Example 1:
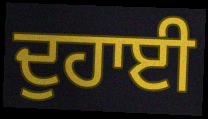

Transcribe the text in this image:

ਦੁਹਾਈ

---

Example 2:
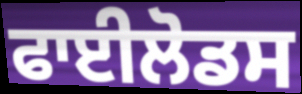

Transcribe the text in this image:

ਫਾਈਲੋਡਸ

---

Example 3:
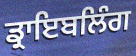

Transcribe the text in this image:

ਡ੍ਰਾਇਬਲਿੰਗ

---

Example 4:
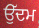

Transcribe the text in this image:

ਉੱਦਮ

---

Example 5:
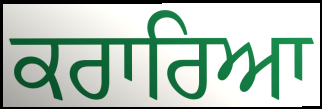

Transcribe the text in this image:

ਕਰਾਰਿਆ